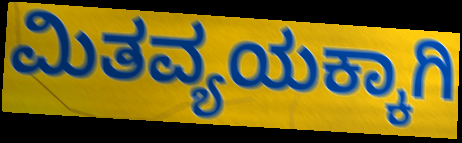
ಮಿತವ್ಯಯಕ್ಕಾಗಿ